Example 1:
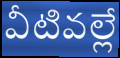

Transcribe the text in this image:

వీటివల్లే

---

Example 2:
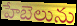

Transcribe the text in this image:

హేబెలును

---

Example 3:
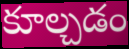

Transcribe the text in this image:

కూల్చడం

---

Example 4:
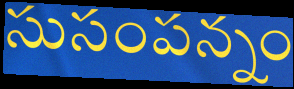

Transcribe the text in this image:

సుసంపన్నం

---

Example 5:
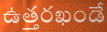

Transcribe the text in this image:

ఉత్తరఖండే